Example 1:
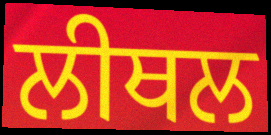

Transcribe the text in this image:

ਲੀਥਲ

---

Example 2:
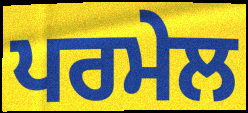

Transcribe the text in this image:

ਪਰਮੇਲ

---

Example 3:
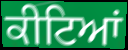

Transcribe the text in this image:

ਕੀਟਿਆਂ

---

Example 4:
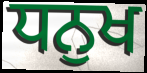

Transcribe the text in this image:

ਧਨੁਖ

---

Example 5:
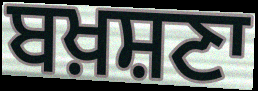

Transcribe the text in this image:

ਬਖ਼ਸ਼ਣਾ